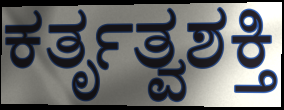
ಕರ್ತೃತ್ವಶಕ್ತಿ